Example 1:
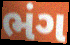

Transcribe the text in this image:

ભંગ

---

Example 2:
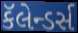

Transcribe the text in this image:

કૅલેન્ડર્સ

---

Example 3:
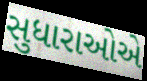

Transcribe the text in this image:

સુધારાઓએ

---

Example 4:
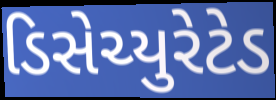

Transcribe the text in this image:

ડિસેચ્યુરેટેડ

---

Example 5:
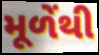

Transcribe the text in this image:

મૂળેંથી